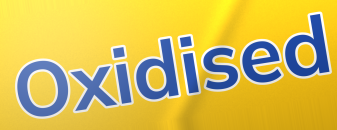
Oxidised